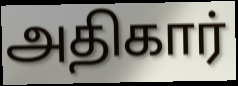
அதிகார்